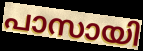
പാസായി